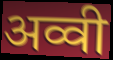
अव्वी